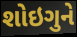
શોઇગુને